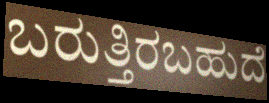
ಬರುತ್ತಿರಬಹುದೆ